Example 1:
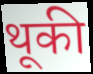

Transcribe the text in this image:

थूकी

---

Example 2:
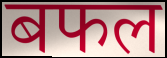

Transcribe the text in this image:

बफल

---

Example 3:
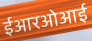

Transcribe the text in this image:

ईआरओआई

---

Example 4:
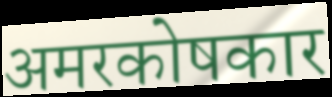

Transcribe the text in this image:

अमरकोषकार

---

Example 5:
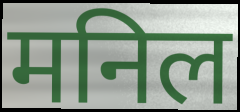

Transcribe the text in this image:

मनिल